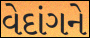
વેદાંગને